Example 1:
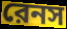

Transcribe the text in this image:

রেনস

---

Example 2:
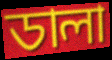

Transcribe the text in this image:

ডালা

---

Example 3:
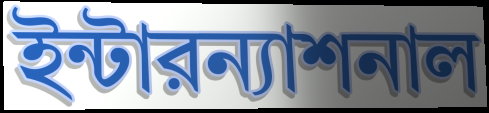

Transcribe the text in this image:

ইন্টারন্যাশনাল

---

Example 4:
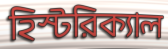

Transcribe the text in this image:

হিস্টরিক্যাল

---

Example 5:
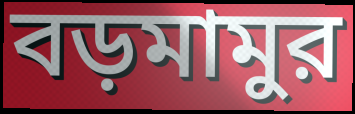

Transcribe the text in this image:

বড়মামুর